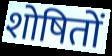
शोषितों